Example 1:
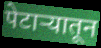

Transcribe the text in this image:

पेटाऱ्यातून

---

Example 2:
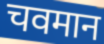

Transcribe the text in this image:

चवमान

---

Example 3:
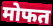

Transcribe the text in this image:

मोफत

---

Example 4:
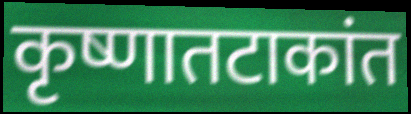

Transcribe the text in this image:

कृष्णातटाकांत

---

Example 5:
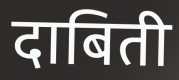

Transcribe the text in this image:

दाबिती